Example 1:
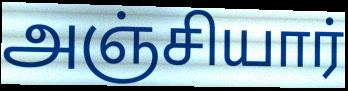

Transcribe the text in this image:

அஞ்சியார்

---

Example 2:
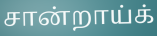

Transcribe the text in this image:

சான்றாய்க்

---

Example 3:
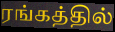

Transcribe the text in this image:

ரங்கத்தில்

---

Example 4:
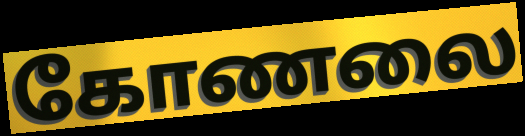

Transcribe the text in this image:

கோணலை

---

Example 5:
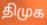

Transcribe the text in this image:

திமுக